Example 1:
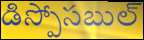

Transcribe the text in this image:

డిస్పోసబుల్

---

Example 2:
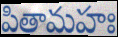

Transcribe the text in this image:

పితామహః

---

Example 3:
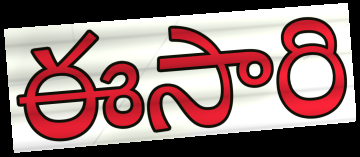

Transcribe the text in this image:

ఈసారి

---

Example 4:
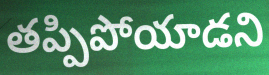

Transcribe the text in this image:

తప్పిపోయాడని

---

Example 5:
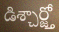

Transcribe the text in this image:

డిశ్చార్జ్తో